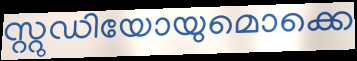
സ്റ്റുഡിയോയുമൊക്കെ